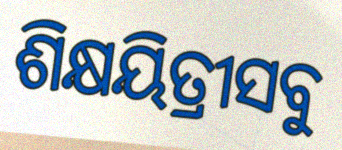
ଶିକ୍ଷୟିତ୍ରୀସବୁ